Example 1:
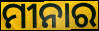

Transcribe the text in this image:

ମୀନାର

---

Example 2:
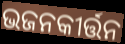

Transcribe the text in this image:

ଭଜନକୀର୍ତ୍ତନ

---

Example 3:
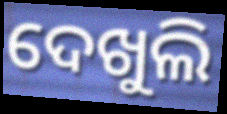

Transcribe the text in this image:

ଦେଖୁଲି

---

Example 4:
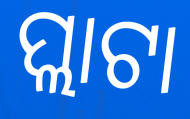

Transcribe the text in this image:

ପ୍ଲାଟା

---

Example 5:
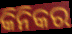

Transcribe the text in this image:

କିନିକର